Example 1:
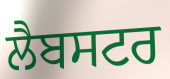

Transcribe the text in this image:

ਲੈਬਸਟਰ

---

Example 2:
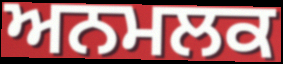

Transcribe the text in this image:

ਅਨਮਲਕ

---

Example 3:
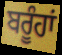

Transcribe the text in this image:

ਬਰੂੰਹਾਂ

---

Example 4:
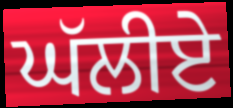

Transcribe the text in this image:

ਘੱਲੀਏ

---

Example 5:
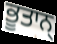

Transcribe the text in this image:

ਭੂਤਾਨ੍